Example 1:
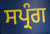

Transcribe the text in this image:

ਸਪ੍ਰੰਗ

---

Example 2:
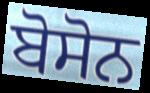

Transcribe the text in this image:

ਬੋਸੋਨ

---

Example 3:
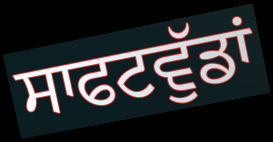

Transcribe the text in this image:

ਸਾਫਟਵੁੱਡਾਂ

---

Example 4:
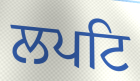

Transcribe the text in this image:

ਲਪਟਿ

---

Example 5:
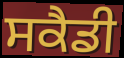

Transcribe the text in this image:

ਸਕੈਡੀ